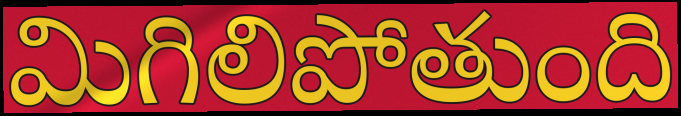
మిగిలిపోతుంది